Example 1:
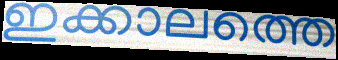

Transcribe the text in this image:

ഇക്കാലത്തെ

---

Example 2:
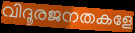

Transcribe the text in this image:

വിദൂരജനതകളേ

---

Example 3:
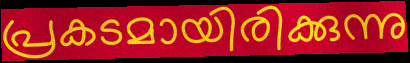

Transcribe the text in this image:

പ്രകടമായിരിക്കുന്നു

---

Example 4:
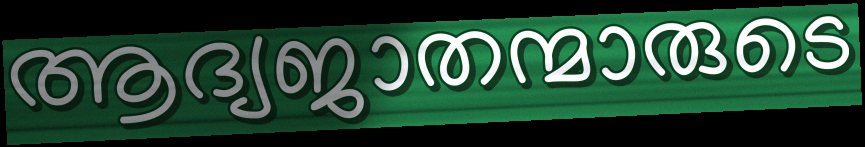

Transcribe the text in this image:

ആദ്യജാതന്മാരുടെ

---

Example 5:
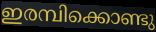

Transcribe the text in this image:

ഇരമ്പിക്കൊണ്ടു